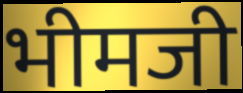
भीमजी